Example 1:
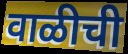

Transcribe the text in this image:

वाळीची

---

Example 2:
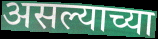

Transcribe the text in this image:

असल्याच्या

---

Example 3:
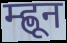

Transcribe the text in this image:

म्ह्णून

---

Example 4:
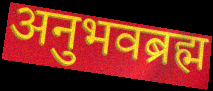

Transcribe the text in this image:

अनुभवब्रह्म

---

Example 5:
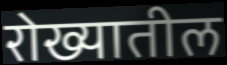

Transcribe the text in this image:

रोख्यातील